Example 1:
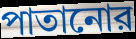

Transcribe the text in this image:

পাতানোর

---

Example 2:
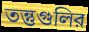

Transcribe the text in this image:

তন্তুগুলির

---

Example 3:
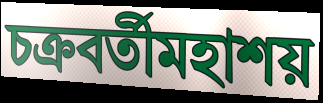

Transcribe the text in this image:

চক্রবর্তীমহাশয়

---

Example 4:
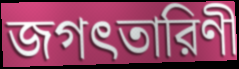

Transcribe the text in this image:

জগৎতারিণী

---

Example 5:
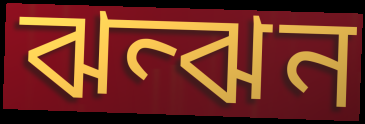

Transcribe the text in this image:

ঝন্ঝন